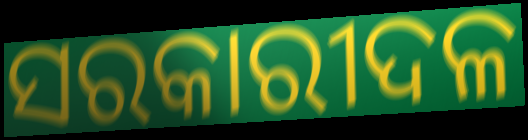
ସରକାରୀଦଳ